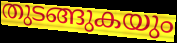
തുടങ്ങുകയും